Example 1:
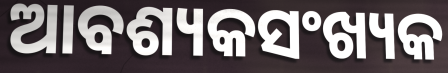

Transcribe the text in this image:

ଆବଶ୍ୟକସଂଖ୍ୟକ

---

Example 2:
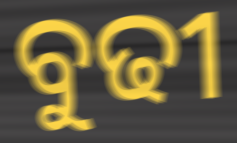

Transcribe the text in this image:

ବୁଢୀ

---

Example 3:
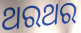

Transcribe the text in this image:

ଥରଥର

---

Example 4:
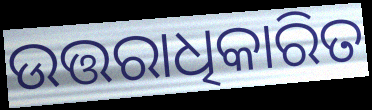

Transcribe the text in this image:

ଉତ୍ତରାଧିକାରିତ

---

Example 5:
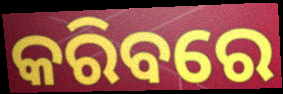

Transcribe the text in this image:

କରିବରେ